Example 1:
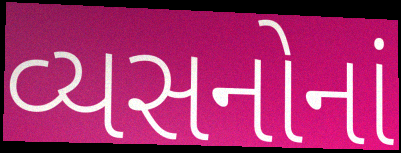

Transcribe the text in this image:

વ્યસનોનાં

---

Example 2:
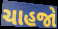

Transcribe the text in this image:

ચાહજો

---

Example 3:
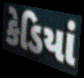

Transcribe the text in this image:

કેડિયાં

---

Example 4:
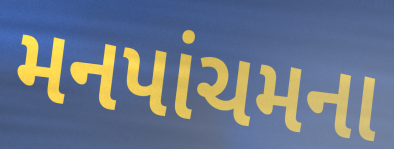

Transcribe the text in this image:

મનપાંચમના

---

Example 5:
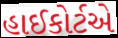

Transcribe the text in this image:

હાઈકોર્ટએ